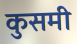
कुसमी